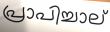
പ്രാപിച്ചാല്